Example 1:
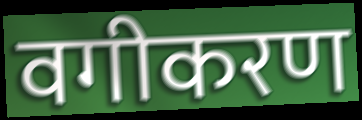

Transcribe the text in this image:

वगीकरण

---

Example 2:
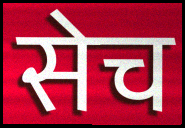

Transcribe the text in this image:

सेच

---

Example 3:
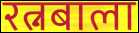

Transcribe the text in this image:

रत्नबाला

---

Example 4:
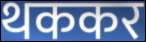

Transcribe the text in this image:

थककर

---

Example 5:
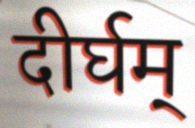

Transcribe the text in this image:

दीर्घम्